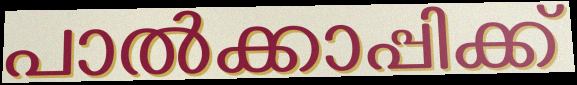
പാൽക്കാപ്പിക്ക്